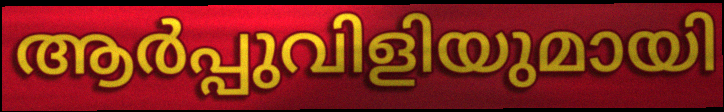
ആർപ്പുവിളിയുമായി